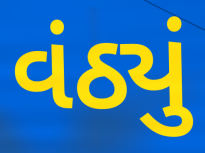
વંઠ્યું